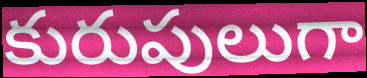
కురుపులుగా